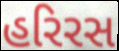
હરિરસ